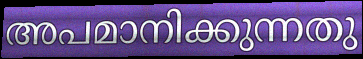
അപമാനിക്കുന്നതു